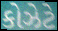
કોઝેટે